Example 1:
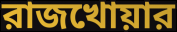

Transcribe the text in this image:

রাজখোয়ার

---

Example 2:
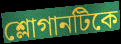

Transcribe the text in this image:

শ্লোগানটিকে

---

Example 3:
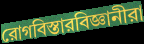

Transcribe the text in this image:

রোগবিস্তারবিজ্ঞানীরা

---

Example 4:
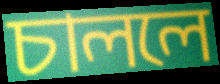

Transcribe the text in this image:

চাললে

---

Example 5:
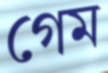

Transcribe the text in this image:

গেম